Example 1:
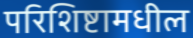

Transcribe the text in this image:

परिशिष्टामधील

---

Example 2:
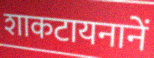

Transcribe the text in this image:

शाकटायनानें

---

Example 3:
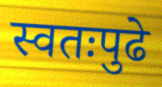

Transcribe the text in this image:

स्वतःपुढे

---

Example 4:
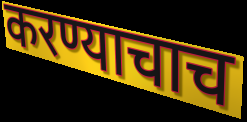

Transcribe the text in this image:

करण्याचाच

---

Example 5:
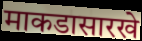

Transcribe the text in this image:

माकडासारखे